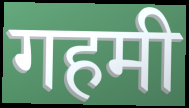
गहमी